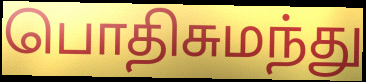
பொதிசுமந்து